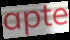
apte